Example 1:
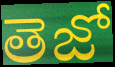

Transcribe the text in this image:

తెజో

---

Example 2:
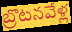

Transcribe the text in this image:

బ్రొటనవేళ్ల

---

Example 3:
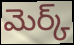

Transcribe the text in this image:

మెర్క్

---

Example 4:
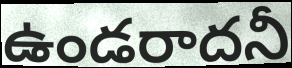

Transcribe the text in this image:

ఉండరాదనీ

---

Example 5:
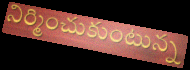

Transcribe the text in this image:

నిర్మించుకుంటున్న